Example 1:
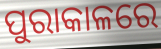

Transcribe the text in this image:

ପୁରାକାଳରେ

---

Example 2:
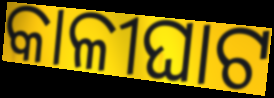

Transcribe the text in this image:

କାଳୀଘାଟ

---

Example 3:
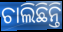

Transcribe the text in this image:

ଚାଲିଛିନ୍ତି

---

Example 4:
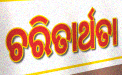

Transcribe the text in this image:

ଚରିତାର୍ଥତା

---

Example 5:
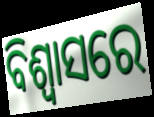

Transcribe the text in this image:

ବିଶ୍ୱାସରେ